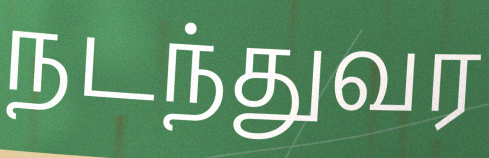
நடந்துவர